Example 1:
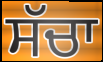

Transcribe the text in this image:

ਸੱਚਾ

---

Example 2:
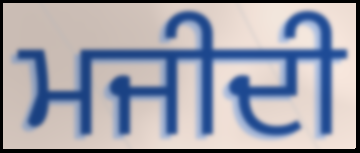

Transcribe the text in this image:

ਮਜੀਦੀ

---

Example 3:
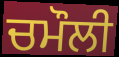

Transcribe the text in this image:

ਚਮੌਲੀ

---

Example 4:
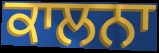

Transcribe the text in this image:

ਕਾਲਨਾ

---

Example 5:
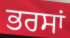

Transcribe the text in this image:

ਭਰਸਾਂ